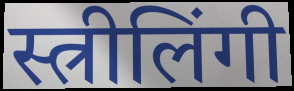
स्त्रीलिंगी